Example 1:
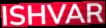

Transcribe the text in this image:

ISHVAR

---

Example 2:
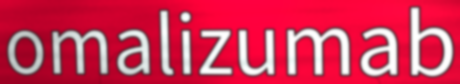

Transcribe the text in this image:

omalizumab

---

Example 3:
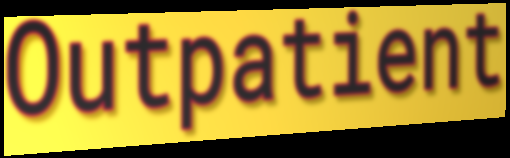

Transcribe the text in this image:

Outpatient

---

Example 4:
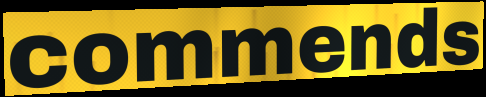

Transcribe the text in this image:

commends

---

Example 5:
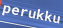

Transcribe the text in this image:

perukku